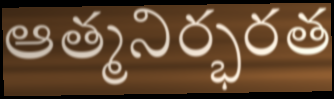
ఆత్మనిర్భరత